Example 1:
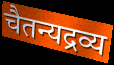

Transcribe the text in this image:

चैतन्यद्रव्य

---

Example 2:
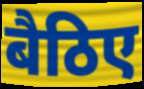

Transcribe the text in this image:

बैठिए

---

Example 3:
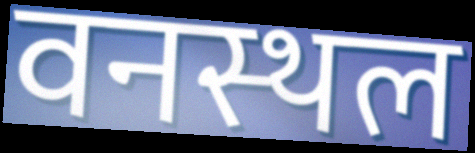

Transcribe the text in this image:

वनस्थल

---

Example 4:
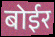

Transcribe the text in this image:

बोईर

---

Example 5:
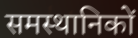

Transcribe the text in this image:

समस्थानिकों